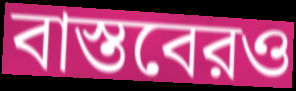
বাস্তবেরও